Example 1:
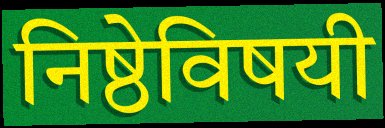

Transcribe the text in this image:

निष्ठेविषयी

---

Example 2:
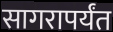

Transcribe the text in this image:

सागरापर्यंत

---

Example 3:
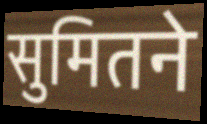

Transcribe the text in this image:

सुमितने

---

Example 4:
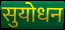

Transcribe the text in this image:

सुयोधन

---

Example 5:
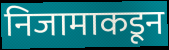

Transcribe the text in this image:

निजामाकडून